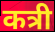
कत्री